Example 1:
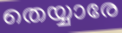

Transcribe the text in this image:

തെയ്യാരേ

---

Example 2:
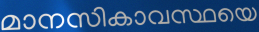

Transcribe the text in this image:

മാനസികാവസ്ഥയെ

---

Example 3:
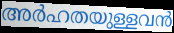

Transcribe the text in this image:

അർഹതയുള്ളവൻ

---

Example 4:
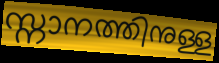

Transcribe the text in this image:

സ്നാനത്തിനുള്ള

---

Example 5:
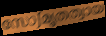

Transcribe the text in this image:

സോഽമൃതത്വായ